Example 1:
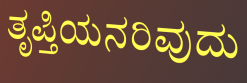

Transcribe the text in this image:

ತೃಪ್ತಿಯನರಿವುದು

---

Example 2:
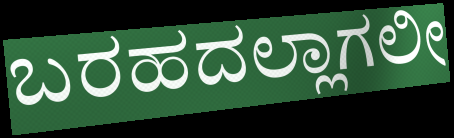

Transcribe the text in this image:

ಬರಹದಲ್ಲಾಗಲೀ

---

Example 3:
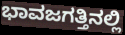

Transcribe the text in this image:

ಭಾವಜಗತ್ತಿನಲ್ಲಿ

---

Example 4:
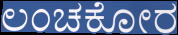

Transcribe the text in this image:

ಲಂಚಕೋರ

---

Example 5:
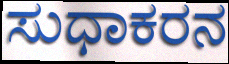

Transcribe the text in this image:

ಸುಧಾಕರನ